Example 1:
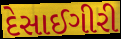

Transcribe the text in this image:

દેસાઈગીરી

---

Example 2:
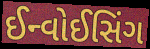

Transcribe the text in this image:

ઈન્વોઈસિંગ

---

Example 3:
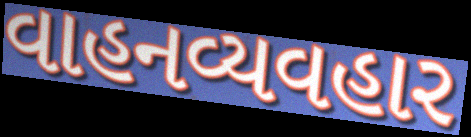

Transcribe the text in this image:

વાહનવ્યવહાર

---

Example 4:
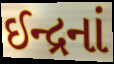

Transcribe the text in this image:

ઈન્દ્રનાં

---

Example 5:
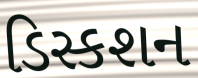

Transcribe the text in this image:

ડિસ્કશન